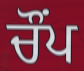
ਚੌਂਪ